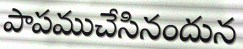
పాపముచేసినందున